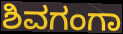
ಶಿವಗಂಗಾ